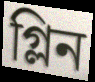
গ্লিন